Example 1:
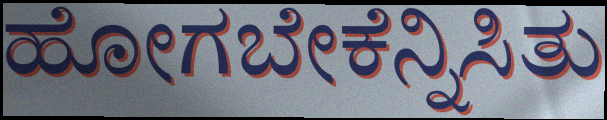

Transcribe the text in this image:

ಹೋಗಬೇಕೆನ್ನಿಸಿತು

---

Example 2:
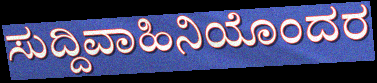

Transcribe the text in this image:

ಸುದ್ದಿವಾಹಿನಿಯೊಂದರ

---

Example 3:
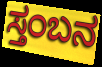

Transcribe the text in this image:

ಸ್ತಂಬನ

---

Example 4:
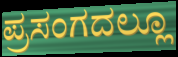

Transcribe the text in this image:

ಪ್ರಸಂಗದಲ್ಲೂ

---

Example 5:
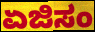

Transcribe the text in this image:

ಏಜಿಸಂ